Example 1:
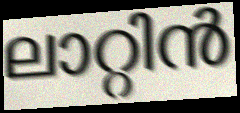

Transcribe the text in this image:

ലാറ്റിൻ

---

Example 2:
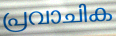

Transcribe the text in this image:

പ്രവാചിക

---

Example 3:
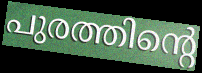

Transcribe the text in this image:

പുരത്തിന്റെ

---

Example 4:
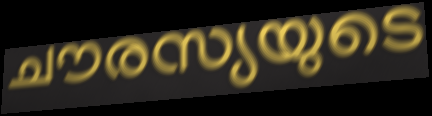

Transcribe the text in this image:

ചൗരസ്യയുടെ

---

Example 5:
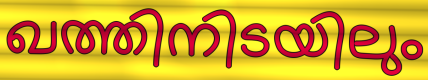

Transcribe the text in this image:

ഖത്തിനിടയിലും